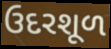
ઉદરશૂળ